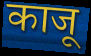
काजू